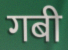
गबी